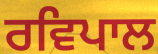
ਰਵਿਪਾਲ